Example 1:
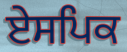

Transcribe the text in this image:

ਏਸਪਿਕ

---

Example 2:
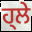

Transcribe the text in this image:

ਹ੍ਲੇ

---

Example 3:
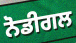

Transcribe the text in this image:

ਨੋਡੀਗਲ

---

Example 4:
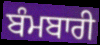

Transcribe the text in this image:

ਬੰਮਬਾਰੀ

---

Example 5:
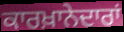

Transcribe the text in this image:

ਕਾਰਖ਼ਾਨੇਦਾਰਾਂ